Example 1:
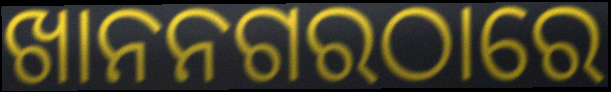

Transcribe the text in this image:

ଖାନନଗରଠାରେ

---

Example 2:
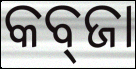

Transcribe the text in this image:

କବ୍‍ଜା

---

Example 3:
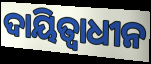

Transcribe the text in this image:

ଦାୟିତ୍ଵାଧୀନ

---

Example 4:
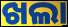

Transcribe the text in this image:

ଖଲା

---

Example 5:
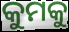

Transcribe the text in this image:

କୁମକୁ